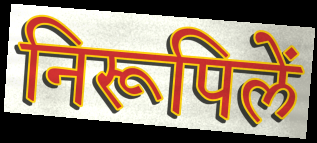
निरूपिलें